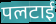
पलटाई